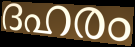
ദഹരം